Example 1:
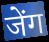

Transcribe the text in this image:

जेंग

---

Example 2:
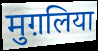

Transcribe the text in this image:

मुग़लिया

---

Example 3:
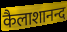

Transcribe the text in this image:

कैलाशानन्द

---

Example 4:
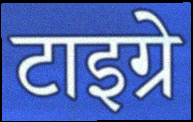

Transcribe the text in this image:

टाइग्रे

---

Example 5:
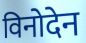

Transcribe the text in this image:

विनोदेन